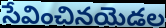
సేవించినయెడల